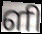
ளி